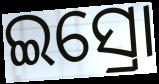
ଇସ୍ରୋ